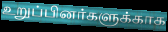
உறுப்பினர்களுக்காக